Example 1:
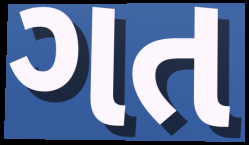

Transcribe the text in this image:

ગત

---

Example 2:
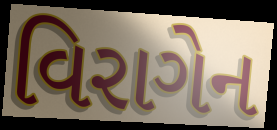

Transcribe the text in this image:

વિરાગેન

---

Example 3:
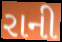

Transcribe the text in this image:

રાની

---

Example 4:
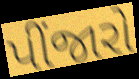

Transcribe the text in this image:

પીંજારો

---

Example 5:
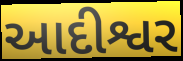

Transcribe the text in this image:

આદીશ્વર